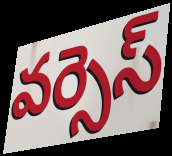
వర్సెస్